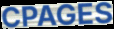
CPAGES